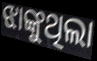
ଝାଙ୍କୁଥିଲା